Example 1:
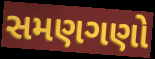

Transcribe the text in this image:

સમણગણો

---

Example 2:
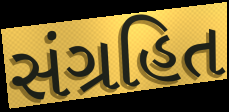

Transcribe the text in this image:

સંગ્રહિત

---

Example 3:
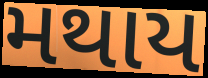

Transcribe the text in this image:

મથાય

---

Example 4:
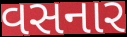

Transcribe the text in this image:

વસનાર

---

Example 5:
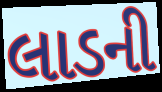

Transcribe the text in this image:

લાડની